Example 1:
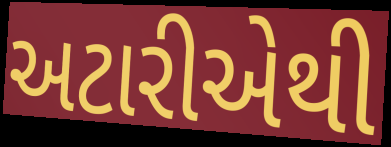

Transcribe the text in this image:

અટારીએથી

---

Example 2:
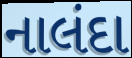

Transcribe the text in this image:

નાલંદા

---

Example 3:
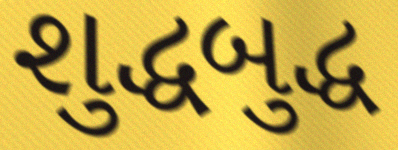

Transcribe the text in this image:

શુદ્ધબુદ્ધ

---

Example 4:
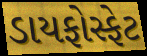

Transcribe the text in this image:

ડાયફોસ્ફેટ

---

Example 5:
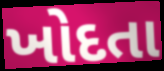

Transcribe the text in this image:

ખોદતા